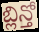
బ్లిన్తో